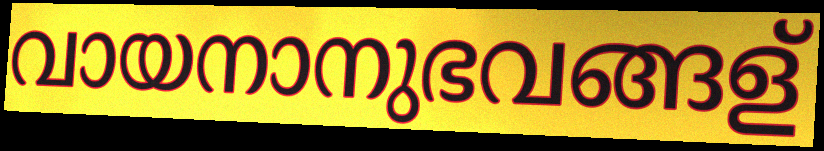
വായനാനുഭവങ്ങള്